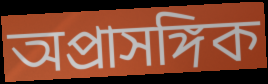
অপ্রাসঙ্গিক